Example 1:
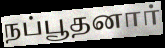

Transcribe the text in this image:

நப்பூதனார்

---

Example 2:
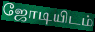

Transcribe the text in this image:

ஜோடியிடம்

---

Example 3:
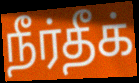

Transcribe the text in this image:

நீர்தீக்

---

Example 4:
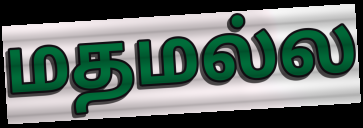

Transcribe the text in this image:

மதமல்ல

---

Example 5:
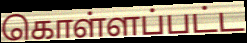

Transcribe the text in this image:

கொள்ளப்பட்ட